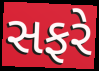
સફરે